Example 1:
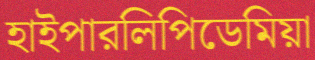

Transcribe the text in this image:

হাইপারলিপিডেমিয়া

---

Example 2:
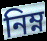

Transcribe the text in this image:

নিম্ন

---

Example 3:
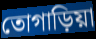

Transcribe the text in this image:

তোগাড়িয়া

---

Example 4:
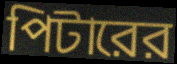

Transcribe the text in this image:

পিটারের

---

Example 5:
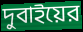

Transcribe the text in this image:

দুবাইয়ের